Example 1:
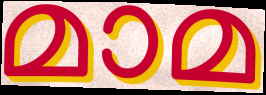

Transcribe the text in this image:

മാമ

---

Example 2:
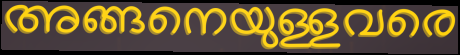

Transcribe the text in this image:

അങ്ങനെയുള്ളവരെ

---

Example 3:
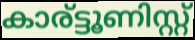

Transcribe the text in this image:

കാര്ട്ടൂണിസ്റ്റ്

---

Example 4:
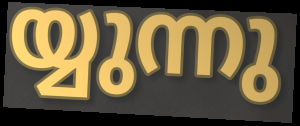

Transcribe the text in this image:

യ്യുന്നു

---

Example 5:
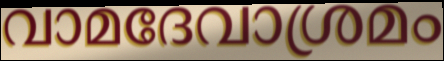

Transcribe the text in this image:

വാമദേവാശ്രമം